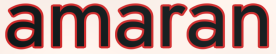
amaran